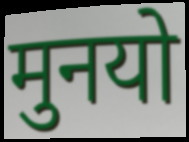
मुनयो